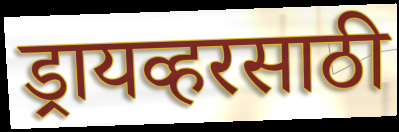
ड्रायव्हरसाठी